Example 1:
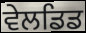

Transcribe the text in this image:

ਵੇਲਡਿਡ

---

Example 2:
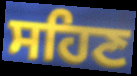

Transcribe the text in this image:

ਸਹਿਣ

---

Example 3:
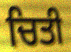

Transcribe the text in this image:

ਚਿਤੀ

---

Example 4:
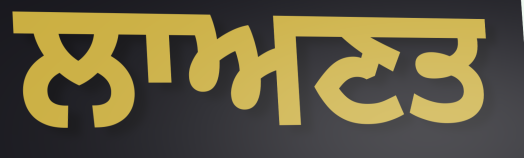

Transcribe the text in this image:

ਲਾਅਣਤ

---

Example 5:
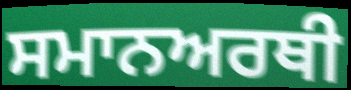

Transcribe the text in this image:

ਸਮਾਨਅਰਥੀ